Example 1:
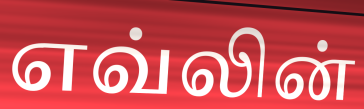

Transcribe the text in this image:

எவ்லின்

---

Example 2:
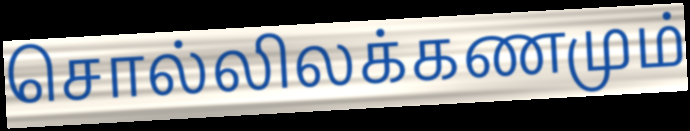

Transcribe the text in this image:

சொல்லிலக்கணமும்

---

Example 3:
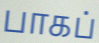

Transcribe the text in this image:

பாகப்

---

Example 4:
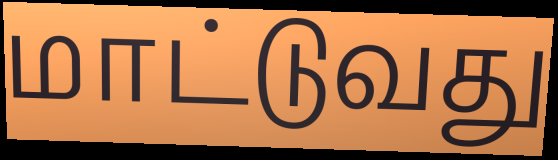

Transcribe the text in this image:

மாட்டுவது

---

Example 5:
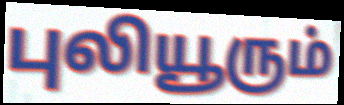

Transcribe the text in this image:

புலியூரும்